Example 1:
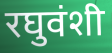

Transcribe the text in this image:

रघुवंशी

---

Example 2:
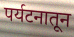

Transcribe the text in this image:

पर्यटनातून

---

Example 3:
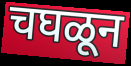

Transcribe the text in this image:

चघळून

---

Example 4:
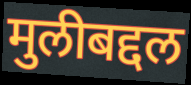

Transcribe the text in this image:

मुलीबद्दल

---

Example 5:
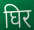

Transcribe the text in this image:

घिर